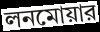
লনমোয়ার